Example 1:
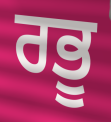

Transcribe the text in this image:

ਰਭੂ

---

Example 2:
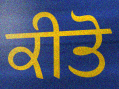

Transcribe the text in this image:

ਕੀਤੋ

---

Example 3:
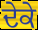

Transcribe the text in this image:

ਦੇਕੇ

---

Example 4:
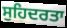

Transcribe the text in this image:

ਸੁਹਿਦਰਤਾ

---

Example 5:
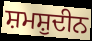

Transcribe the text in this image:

ਸ਼ਮਸ਼ੁਦੀਨ